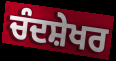
ਚੰਦਸ਼ੇਖਰ